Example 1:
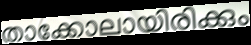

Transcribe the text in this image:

താക്കോലായിരിക്കും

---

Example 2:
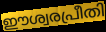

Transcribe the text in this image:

ഈശ്വരപ്രീതി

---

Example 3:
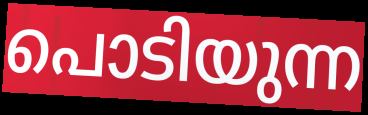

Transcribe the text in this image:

പൊടിയുന്ന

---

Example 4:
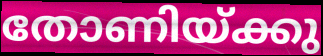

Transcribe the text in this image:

തോണിയ്ക്കു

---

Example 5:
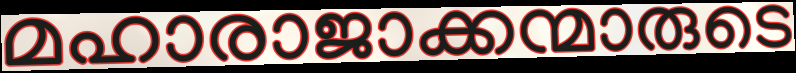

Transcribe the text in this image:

മഹാരാജാക്കന്മാരുടെ